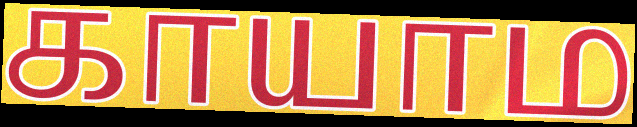
காயாம